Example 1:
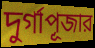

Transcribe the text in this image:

দুর্গাপূজার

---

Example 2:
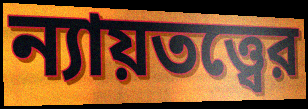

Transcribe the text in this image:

ন্যায়তত্ত্বের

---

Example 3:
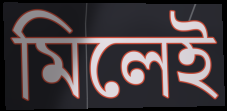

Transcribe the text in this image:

মিলেই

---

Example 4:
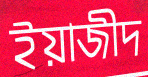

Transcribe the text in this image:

ইয়াজীদ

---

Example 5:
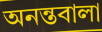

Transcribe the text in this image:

অনন্তবালা